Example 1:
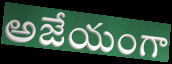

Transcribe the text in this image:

అజేయంగా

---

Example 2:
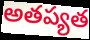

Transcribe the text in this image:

అతప్యత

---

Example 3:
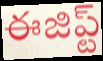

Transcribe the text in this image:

ఈజిప్ట్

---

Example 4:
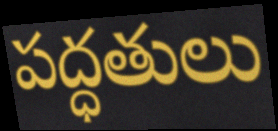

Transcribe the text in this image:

పద్ధతులు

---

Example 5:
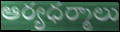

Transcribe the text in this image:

ఆర్యధర్మాలు